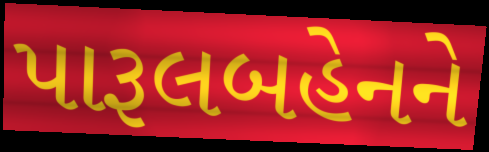
પારૂલબહેનને